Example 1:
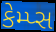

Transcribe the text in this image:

કેમ્પ્સ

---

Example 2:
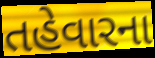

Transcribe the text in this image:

તહેવારના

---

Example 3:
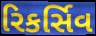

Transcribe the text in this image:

રિકર્સિવ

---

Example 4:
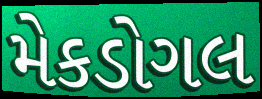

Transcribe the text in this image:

મેકડોગલ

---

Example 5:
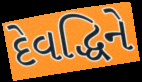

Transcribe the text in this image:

દેવદ્ધિને